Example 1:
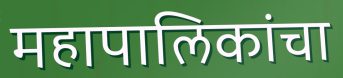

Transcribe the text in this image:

महापालिकांचा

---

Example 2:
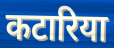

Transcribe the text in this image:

कटारिया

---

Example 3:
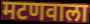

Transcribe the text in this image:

मटणवाला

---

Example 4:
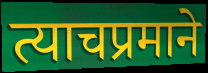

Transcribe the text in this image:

त्याचप्रमाने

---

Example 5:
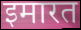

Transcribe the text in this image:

इमारत